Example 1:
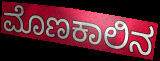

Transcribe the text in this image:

ಮೊಣಕಾಲಿನ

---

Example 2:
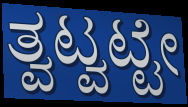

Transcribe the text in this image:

ತ್ವಟ್ವಟ್ಟೇ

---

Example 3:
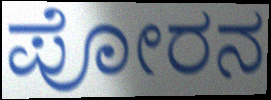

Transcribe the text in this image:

ಪೋರನ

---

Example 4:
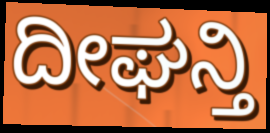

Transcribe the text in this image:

ದೀಘನ್ತಿ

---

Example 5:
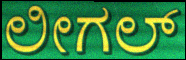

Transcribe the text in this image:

ಲೀಗಲ್